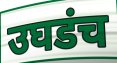
उघडंच